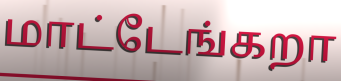
மாட்டேங்கறா